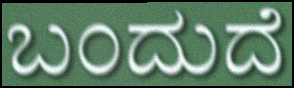
ಬಂದುದೆ